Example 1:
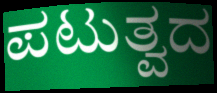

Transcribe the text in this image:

ಪಟುತ್ವದ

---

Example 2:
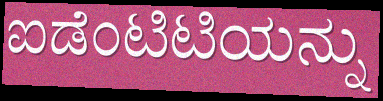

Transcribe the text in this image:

ಐಡೆಂಟಿಟಿಯನ್ನು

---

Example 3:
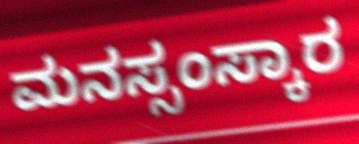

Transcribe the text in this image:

ಮನಸ್ಸಂಸ್ಕಾರ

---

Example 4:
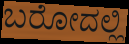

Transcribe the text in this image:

ಬರೋದಲ್ಲಿ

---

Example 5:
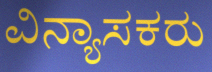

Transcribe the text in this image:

ವಿನ್ಯಾಸಕರು